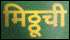
मिठ्ठूची